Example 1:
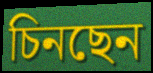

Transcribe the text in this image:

চিনছেন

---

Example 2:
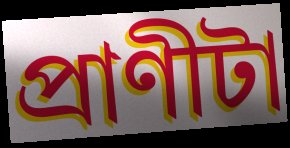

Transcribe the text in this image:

প্রাণীটা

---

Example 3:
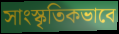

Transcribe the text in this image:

সাংস্কৃতিকভাবে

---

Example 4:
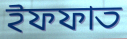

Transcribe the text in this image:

ইফফাত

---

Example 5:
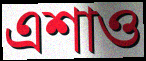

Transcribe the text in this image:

এশাও